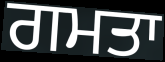
ਗਮਤਾ